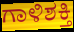
ಗಾಳಿಶಕ್ತಿ